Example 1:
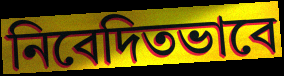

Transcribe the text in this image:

নিবেদিতভাবে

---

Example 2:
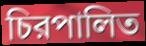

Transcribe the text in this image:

চিরপালিত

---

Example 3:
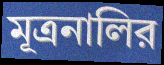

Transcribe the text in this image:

মূত্রনালির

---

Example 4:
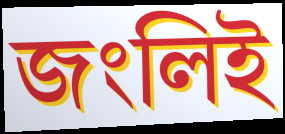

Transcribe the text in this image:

জংলিই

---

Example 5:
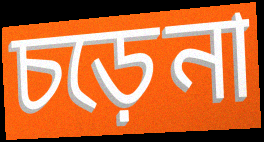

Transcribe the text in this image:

চড়েনা